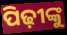
ପିଢ଼ୀଙ୍କୁ